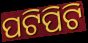
ପଟିପିଟି